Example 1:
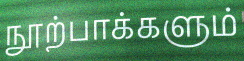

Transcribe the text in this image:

நூற்பாக்களும்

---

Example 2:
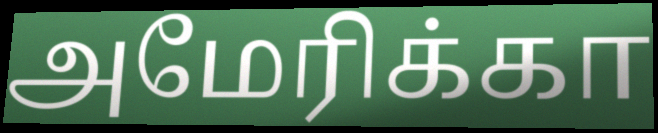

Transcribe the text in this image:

அமேரிக்கா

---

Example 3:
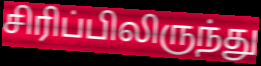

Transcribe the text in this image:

சிரிப்பிலிருந்து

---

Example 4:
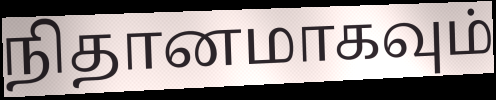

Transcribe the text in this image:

நிதானமாகவும்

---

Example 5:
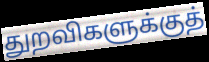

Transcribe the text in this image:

துறவிகளுக்குத்